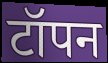
टॉपन